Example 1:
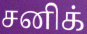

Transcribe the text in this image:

சனிக்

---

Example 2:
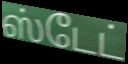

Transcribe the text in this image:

ஸ்டேட்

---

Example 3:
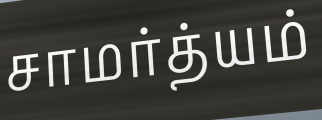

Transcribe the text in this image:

சாமர்த்யம்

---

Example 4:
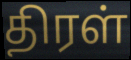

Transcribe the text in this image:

திரள்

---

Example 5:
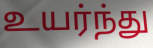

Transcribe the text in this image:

உயர்ந்து